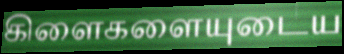
கிளைகளையுடைய